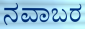
ನವಾಬರ